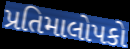
પ્રતિમાલોપકો